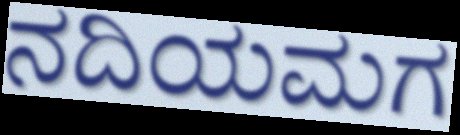
ನದಿಯಮಗ